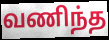
வணிந்த